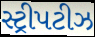
સ્ટ્રીપટીઝ